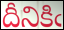
దీనికిఁ